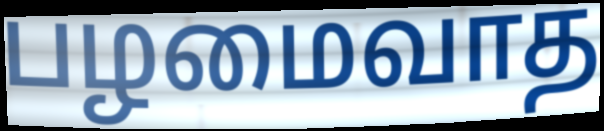
பழமைவாத